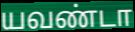
யவண்டா